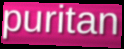
puritan